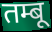
तम्बू